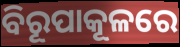
ବିରୂପାକୂଳରେ